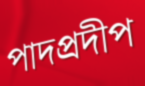
পাদপ্রদীপ